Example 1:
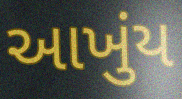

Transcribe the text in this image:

આખુંય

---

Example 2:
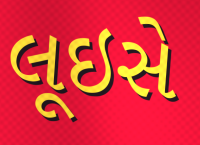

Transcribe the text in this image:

લૂઇસે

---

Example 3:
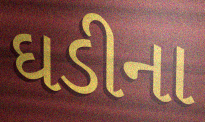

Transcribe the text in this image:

ઘડીના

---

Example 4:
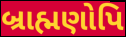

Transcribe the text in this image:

બ્રાહ્મણોપિ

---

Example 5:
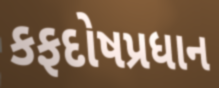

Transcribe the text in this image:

કફદોષપ્રધાન